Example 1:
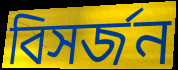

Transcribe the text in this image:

বিসৰ্জন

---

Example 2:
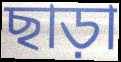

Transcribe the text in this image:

ছাড়া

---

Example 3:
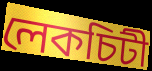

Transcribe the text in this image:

লেকচিটী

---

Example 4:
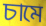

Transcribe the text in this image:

চামে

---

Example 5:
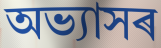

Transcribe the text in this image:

অভ্যাসৰ